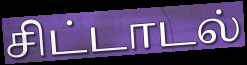
சிட்டாடல்